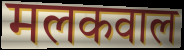
मलकवाल